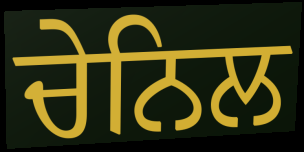
ਚੇਨਿਲ